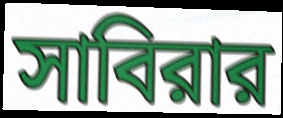
সাবিরার